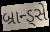
બ્રાન્ડ્સે